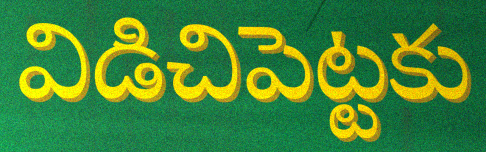
విడిచిపెట్టకు